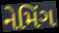
નેમિંગ